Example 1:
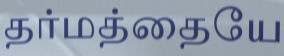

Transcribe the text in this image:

தர்மத்தையே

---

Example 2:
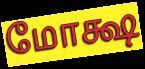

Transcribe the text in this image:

மோக்ஷ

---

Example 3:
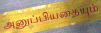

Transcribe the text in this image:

அனுப்பியதையும்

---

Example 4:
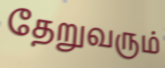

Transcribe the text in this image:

தேறுவரும்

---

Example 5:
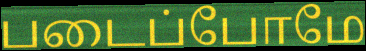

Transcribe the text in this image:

படைப்போமே